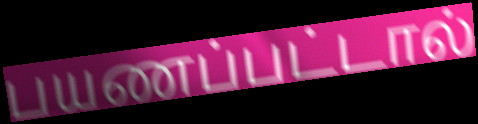
பயணப்பட்டால்